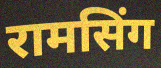
रामसिंग